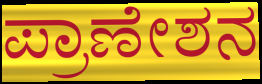
ಪ್ರಾಣೇಶನ